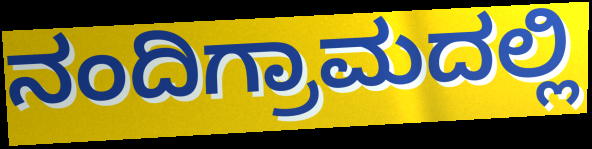
ನಂದಿಗ್ರಾಮದಲ್ಲಿ